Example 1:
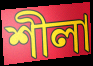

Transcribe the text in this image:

শীলা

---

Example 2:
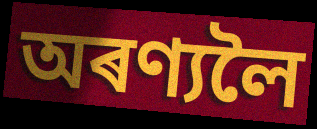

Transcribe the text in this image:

অৰণ্যলৈ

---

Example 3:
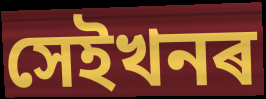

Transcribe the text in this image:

সেইখনৰ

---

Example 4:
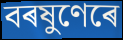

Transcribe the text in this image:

বৰষুণেৰে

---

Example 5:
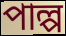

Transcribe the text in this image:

পাল্প